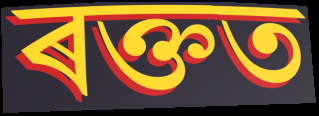
ৰক্তত